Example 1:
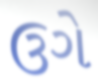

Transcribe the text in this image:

ઉગે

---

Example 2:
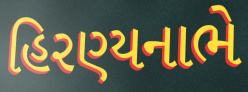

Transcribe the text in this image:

હિરણ્યનાભે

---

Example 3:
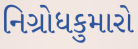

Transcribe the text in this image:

નિગ્રોધકુમારો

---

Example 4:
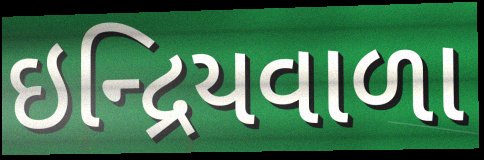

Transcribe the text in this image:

ઇન્દ્રિયવાળા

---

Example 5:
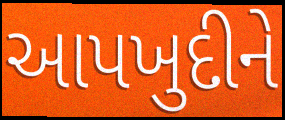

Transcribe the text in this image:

આપખુદીને